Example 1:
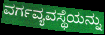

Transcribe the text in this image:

ವರ್ಗವ್ಯವಸ್ಥೆಯನ್ನು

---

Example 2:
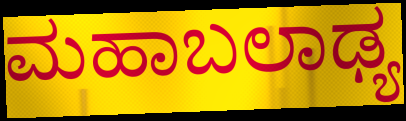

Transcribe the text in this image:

ಮಹಾಬಲಾಢ್ಯ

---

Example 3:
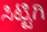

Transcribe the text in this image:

ಸಿಟ್ಟಿಗಿ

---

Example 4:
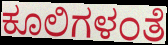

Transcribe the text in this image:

ಕೂಲಿಗಳಂತೆ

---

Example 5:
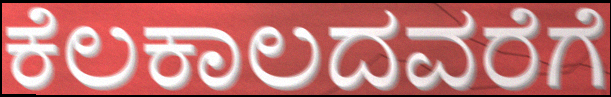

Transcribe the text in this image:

ಕೆಲಕಾಲದವರೆಗೆ